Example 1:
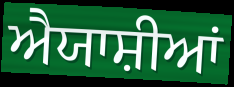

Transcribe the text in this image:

ਐਯਾਸ਼ੀਆਂ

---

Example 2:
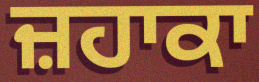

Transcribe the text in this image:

ਜ਼ਹਾਕਾ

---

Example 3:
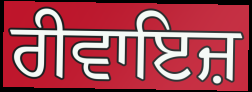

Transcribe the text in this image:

ਰੀਵਾਇਜ਼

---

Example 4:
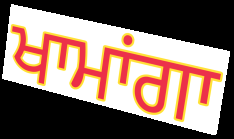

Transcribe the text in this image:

ਖਾਮਾਂਗਾ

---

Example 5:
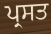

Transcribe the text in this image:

ਪ੍ਰਸਤ